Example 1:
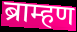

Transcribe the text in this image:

ब्राम्हण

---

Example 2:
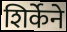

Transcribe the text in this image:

शिर्केने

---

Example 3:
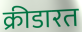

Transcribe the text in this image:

क्रीडारत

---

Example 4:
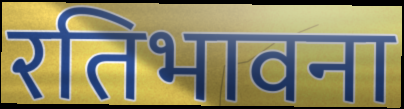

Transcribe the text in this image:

रतिभावना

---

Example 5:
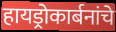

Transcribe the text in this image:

हायड्रोकार्बनांचे